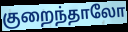
குறைந்தாலோ